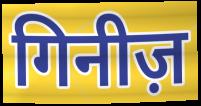
गिनीज़